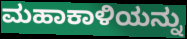
ಮಹಾಕಾಳಿಯನ್ನು